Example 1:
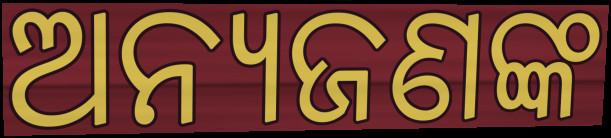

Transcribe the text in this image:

ଅନ୍ୟଜଣଙ୍କ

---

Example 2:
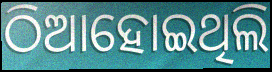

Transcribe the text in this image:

ଠିଆହୋଇଥିଲି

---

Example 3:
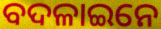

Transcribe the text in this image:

ବଦଳାଇନେ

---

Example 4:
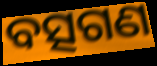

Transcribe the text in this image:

ବତ୍ସଗଣ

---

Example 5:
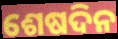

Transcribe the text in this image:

ଶେଷଦିନ